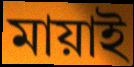
মায়াই